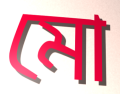
মো